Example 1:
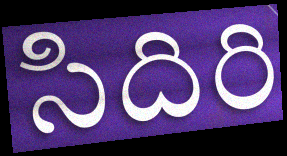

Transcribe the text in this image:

సిదిరి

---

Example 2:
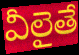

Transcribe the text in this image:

వీలైతే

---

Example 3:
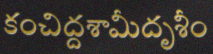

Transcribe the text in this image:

కంచిద్దశామీదృశీం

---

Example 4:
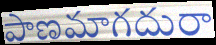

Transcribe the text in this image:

పాణమాగదురా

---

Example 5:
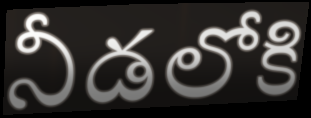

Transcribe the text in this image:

నీడలోకి